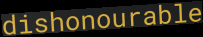
dishonourable